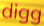
digg